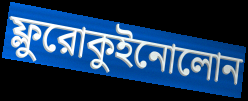
ফ্লুরোকুইনোলোন